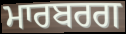
ਮਾਰਬਰਗ